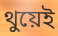
থুয়েই